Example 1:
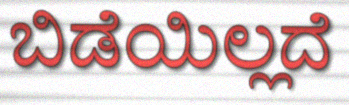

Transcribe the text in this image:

ಬಿಡೆಯಿಲ್ಲದೆ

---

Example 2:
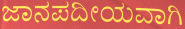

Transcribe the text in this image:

ಜಾನಪದೀಯವಾಗಿ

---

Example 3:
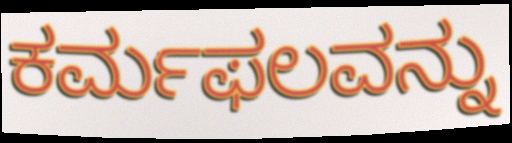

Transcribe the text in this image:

ಕರ್ಮಫಲವನ್ನು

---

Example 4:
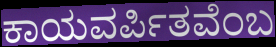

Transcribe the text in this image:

ಕಾಯವರ್ಪಿತವೆಂಬ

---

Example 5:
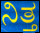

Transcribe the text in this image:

ನಿತ್ತ